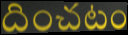
దించటం